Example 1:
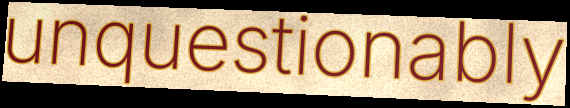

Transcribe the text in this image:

unquestionably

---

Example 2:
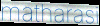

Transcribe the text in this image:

matharasi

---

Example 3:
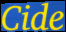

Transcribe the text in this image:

Cide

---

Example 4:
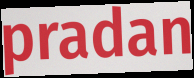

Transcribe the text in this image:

pradan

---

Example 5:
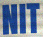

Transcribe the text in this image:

NIT